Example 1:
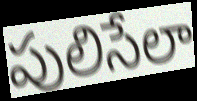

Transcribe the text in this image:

పులిసేలా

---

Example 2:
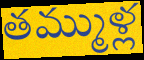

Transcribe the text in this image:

తమ్ముళ్ల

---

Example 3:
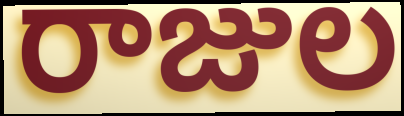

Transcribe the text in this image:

రాజుల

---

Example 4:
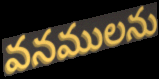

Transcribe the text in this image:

వనములను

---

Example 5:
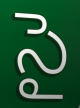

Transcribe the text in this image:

సై